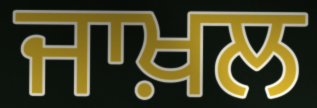
ਜਾਖ਼ਲ